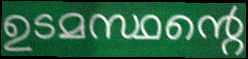
ഉടമസ്ഥന്റെ